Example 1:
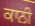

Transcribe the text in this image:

ਕਾਨੀ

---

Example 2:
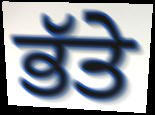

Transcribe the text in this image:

ਭੱਤੇ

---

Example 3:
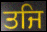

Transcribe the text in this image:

ਤਜਿ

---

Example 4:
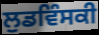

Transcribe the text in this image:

ਲੁਡਵਿੰਸਕੀ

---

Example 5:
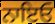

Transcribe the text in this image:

ਨਾਇਓ